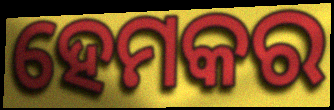
ହେମକର